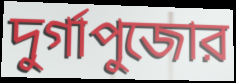
দুর্গাপুজোর